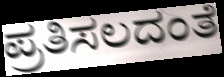
ಪ್ರತಿಸಲದಂತೆ